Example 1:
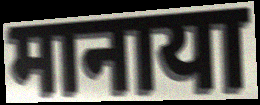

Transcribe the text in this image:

मानाया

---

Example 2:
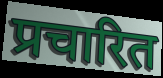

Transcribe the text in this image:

प्रचारित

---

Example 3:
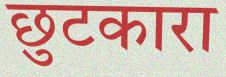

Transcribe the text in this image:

छुटकारा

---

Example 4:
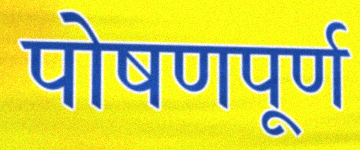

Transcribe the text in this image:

पोषणपूर्ण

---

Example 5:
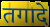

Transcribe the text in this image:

तगादे